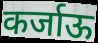
कर्जाऊ